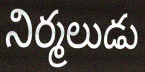
నిర్మలుడు